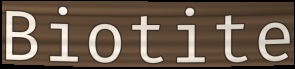
Biotite